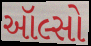
ઑલ્સો